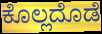
ಕೊಲ್ಲದೊಡೆ